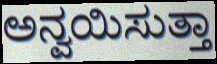
ಅನ್ವಯಿಸುತ್ತಾ